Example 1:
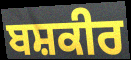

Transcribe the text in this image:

ਬਸ਼ਕੀਰ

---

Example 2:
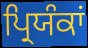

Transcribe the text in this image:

ਪ੍ਰਿਯੰਕਾਂ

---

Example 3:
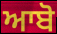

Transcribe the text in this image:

ਆਬੋ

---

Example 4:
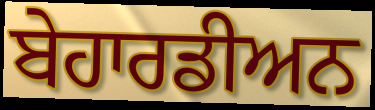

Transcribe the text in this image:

ਬੇਹਾਰਡੀਅਨ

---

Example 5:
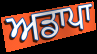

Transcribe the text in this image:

ਅਡਾਪਾ